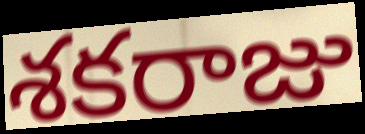
శకరాజు